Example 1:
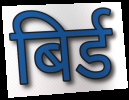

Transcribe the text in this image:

बिर्ड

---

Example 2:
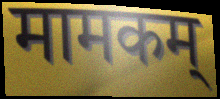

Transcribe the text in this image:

मामकम्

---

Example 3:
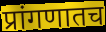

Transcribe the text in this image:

प्रांगणातच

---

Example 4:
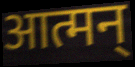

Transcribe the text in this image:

आत्मन्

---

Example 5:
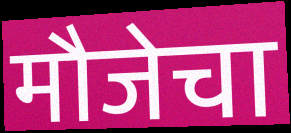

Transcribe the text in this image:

मौजेचा